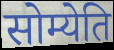
सोम्येति